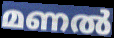
മണൽ